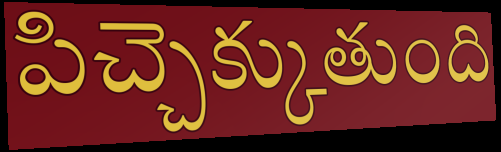
పిచ్చెక్కుతుంది